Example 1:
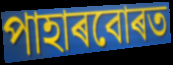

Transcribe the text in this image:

পাহাৰবোৰত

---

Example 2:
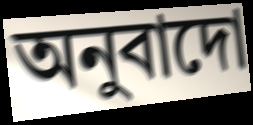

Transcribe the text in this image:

অনুবাদো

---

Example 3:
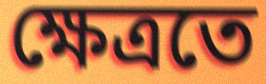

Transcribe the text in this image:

ক্ষেত্ৰতে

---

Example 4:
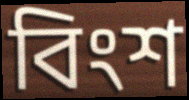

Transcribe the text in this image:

বিংশ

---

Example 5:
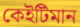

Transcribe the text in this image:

কেইটিমান